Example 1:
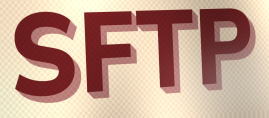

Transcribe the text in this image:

SFTP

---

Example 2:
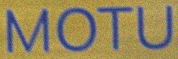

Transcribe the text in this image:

MOTU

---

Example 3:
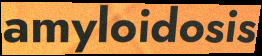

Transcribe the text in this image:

amyloidosis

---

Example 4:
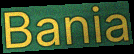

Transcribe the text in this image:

Bania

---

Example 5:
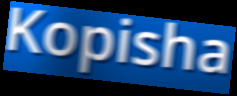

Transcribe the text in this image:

Kopisha